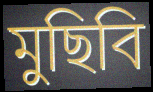
মুছিবি